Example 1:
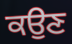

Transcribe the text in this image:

ਕਉਣ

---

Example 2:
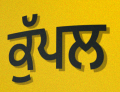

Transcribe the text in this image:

ਕੁੱਪਲ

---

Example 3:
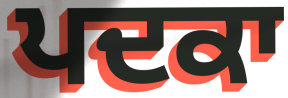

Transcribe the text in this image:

ਪਦਕਾ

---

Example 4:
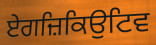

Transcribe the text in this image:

ਏਗਜ਼ਿਕਿਉਟਿਵ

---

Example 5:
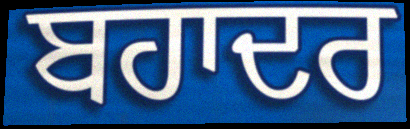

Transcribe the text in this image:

ਬਹਾਦਰ